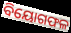
ବିୟୋଗଫଳ